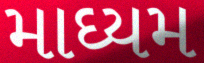
માઘ્યમ